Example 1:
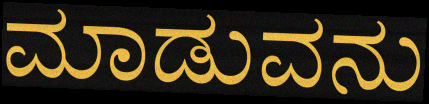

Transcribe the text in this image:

ಮಾಡುವನು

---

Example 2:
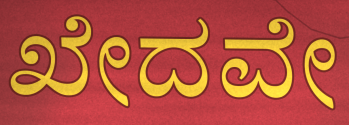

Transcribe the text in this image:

ಖೇದವೇ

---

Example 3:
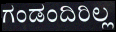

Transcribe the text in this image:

ಗಂಡಂದಿರಿಲ್ಲ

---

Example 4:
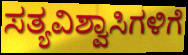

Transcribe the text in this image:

ಸತ್ಯವಿಶ್ವಾಸಿಗಳಿಗೆ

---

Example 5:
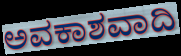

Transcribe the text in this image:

ಅವಕಾಶವಾದಿ